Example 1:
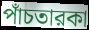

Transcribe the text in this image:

পাঁচতারকা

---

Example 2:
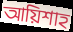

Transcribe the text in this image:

আয়িশাহ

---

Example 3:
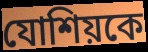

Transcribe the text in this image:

যোশিয়কে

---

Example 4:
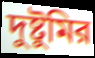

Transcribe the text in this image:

দুষ্টুমির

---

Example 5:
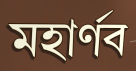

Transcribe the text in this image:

মহার্ণব